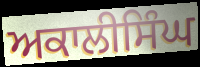
ਅਕਾਲੀਸਿੰਘ